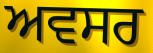
ਅਵਸਰ